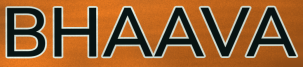
BHAAVA